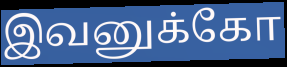
இவனுக்கோ